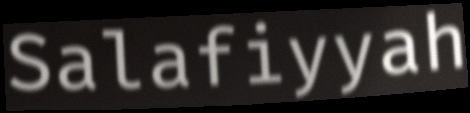
Salafiyyah